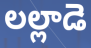
లల్లాడె